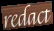
redact